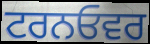
ਟਰਨਓਵਰ